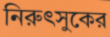
নিরুৎসুকের